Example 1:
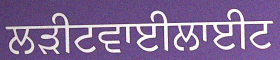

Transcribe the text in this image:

ਲੜੀਟਵਾਈਲਾਈਟ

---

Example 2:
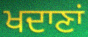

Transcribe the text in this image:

ਖਦਾਣਾਂ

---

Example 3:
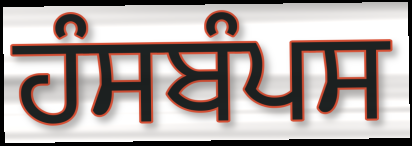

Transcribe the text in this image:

ਹੰਸਬੰਪਸ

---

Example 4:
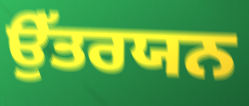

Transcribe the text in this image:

ਉੱਤਰਯਨ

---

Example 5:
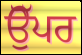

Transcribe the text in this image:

ਉੋੱਪਰ